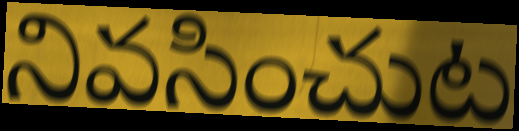
నివసించుట